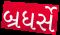
બ્રધર્સે